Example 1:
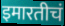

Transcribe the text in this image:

इमारतीचं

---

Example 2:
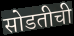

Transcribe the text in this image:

सोडतीची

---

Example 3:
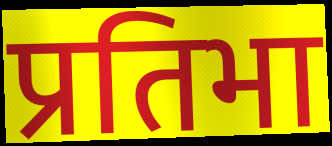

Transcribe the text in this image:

प्रतिभा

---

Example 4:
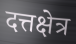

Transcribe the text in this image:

दत्तक्षेत्र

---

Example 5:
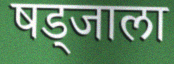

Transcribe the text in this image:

षड्जाला